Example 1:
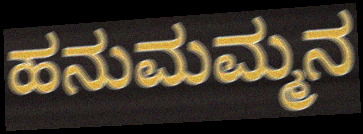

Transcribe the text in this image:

ಹನುಮಮ್ಮನ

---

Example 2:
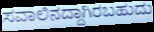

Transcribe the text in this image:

ಸವಾಲಿನದ್ದಾಗಿರಬಹುದು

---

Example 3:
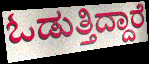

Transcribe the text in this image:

ಓಡುತ್ತಿದ್ದಾರೆ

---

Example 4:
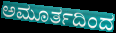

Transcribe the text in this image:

ಅಮೂರ್ತದಿಂದ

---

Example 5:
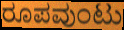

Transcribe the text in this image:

ರೂಪವುಂಟು